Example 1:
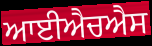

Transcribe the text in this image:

ਆਈਐਚਐਸ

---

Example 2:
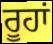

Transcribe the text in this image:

ਰੂਹਾਂ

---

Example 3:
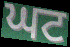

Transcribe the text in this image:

ਘਟ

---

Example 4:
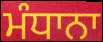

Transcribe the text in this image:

ਮੰਧਾਨਾ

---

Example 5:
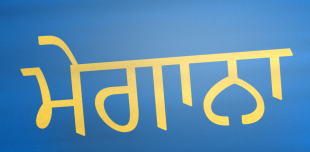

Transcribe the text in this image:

ਮੇਗਾਨਾ